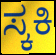
ಸ್ಕಕಿ